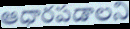
ఆధారపడాలని